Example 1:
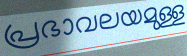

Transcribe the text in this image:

പ്രഭാവലയമുള്ള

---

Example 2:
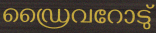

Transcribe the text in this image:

ഡ്രൈവറോടു്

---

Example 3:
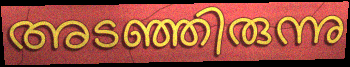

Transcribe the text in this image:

അടഞ്ഞിരുന്നു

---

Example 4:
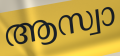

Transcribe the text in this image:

ആസ്വാ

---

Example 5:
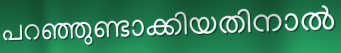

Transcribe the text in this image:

പറഞ്ഞുണ്ടാക്കിയതിനാൽ